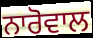
ਨਾਰੋਵਾਲ